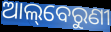
ଆଲ୍‌ବେରୁଣୀ